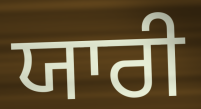
ਯਾਰੀ